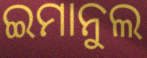
ଇମାନୁଲ